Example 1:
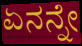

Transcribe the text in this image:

ಏನನ್ನೇ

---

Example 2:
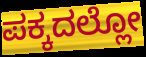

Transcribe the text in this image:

ಪಕ್ಕದಲ್ಲೋ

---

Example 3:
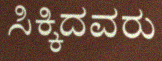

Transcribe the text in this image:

ಸಿಕ್ಕಿದವರು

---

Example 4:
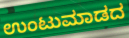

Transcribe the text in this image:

ಉಂಟುಮಾಡದ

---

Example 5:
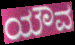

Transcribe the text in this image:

ಯೌವ